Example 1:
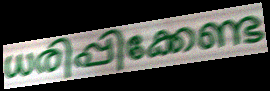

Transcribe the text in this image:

ധരിപ്പിക്കേണ്ട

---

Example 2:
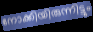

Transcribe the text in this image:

നോക്കിയിരുന്നിട്ടും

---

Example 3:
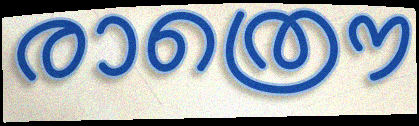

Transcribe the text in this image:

രാത്രൌ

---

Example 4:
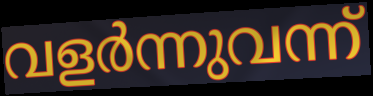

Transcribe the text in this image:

വളർന്നുവന്ന്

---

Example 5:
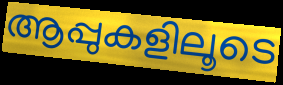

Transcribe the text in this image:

ആപ്പുകളിലൂടെ